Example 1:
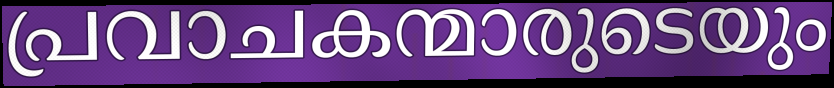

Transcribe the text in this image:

പ്രവാചകന്മാരുടെയും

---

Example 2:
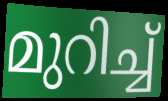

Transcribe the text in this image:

മുറിച്ച്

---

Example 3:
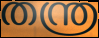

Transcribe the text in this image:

തന്ത്ര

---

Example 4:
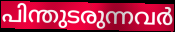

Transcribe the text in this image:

പിന്തുടരുന്നവർ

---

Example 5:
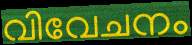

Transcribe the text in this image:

വിവേചനം